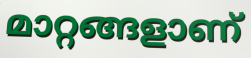
മാറ്റങ്ങളാണ്